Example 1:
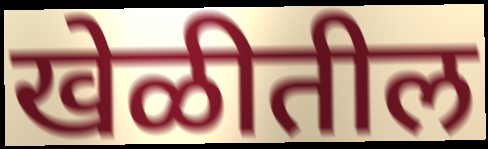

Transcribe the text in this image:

खेळीतील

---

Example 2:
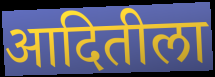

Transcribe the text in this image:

आदितीला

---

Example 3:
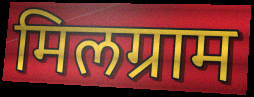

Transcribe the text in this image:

मिलग्राम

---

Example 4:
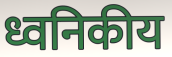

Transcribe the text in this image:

ध्वनिकीय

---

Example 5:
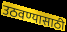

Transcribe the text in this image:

उठवण्यासाठी